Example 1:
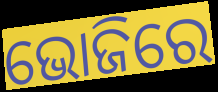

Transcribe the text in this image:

ଭୋଜିରେ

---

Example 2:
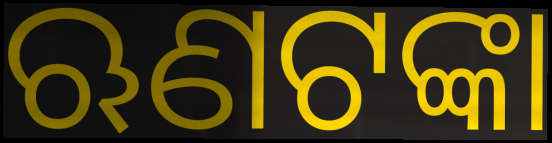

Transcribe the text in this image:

ଋଣଟଙ୍କା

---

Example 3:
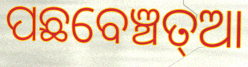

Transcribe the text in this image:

ପଛବେଞ୍ଚତ୍ଆ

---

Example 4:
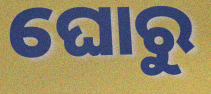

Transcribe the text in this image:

ଘୋରୁ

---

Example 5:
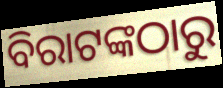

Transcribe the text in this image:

ବିରାଟଙ୍କଠାରୁ